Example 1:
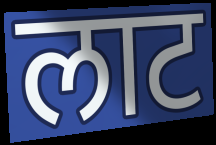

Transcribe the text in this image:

लाट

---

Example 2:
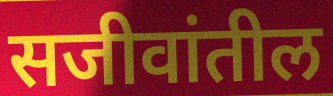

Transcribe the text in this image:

सजीवांतील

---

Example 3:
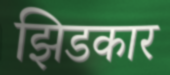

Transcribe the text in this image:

झिडकार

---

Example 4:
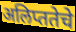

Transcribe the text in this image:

अलिप्ततेचे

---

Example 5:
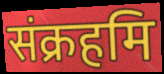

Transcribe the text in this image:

संक्रहमि